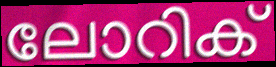
ലോറിക്